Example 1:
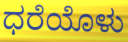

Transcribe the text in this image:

ಧರೆಯೊಳು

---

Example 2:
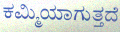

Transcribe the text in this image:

ಕಮ್ಮಿಯಾಗುತ್ತದೆ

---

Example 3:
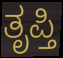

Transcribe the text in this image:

ತೃಪ್ತಿ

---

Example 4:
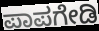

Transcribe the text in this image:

ಪಾಪಗೇಡಿ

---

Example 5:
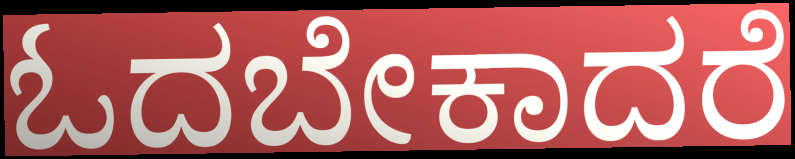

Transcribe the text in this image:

ಓದಬೇಕಾದರೆ